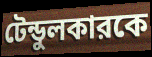
টেন্ডুলকারকে